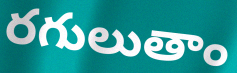
రగులుతాం